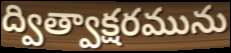
ద్విత్వాక్షరమును